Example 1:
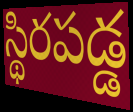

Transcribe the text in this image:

స్థిరపడ్డ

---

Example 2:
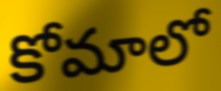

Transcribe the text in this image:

కోమాలో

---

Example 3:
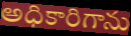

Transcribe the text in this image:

అధికారిగాను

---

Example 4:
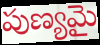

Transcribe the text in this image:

పుణ్యమై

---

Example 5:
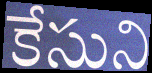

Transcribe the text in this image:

కేసుని